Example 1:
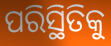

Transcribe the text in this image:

ପରିସ୍ଥିତିକୁ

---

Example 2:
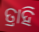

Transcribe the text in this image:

ତ୍ରାହି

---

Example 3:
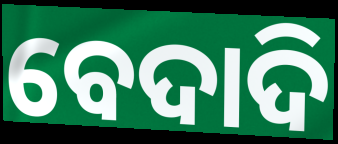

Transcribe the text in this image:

ବେଦାଦି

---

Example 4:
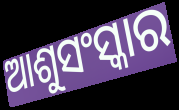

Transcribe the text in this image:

ଆଶୁସଂସ୍କାର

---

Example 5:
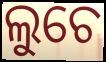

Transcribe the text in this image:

ଲୁଚେ